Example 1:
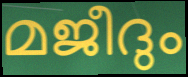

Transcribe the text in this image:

മജീദും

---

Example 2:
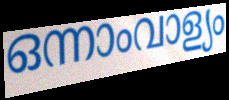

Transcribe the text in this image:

ഒന്നാംവാള്യം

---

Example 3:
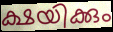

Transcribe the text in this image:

ക്ഷയിക്കും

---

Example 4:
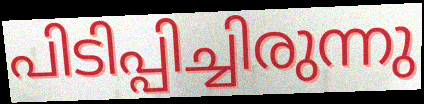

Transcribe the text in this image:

പിടിപ്പിച്ചിരുന്നു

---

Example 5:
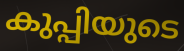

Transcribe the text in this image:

കുപ്പിയുടെ